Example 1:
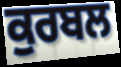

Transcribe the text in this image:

ਕੁਰਬਲ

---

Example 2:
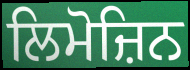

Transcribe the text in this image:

ਲਿਮੋਜ਼ਿਨ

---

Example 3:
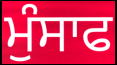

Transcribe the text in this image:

ਮੁੰਸਾਫ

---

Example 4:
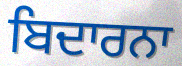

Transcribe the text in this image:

ਬਿਦਾਰਨਾ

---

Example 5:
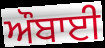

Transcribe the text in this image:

ਔਬਾਈ